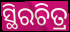
ସ୍ଥିରଚିତ୍ର